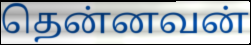
தென்னவன்